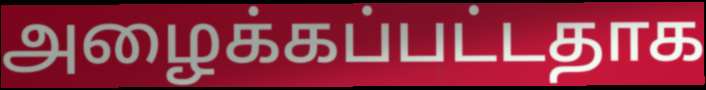
அழைக்கப்பட்டதாக